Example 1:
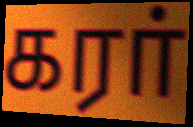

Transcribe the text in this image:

கரர்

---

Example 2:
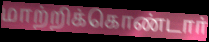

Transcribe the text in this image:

மாற்றிக்கொண்டார்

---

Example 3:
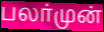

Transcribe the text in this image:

பலர்முன்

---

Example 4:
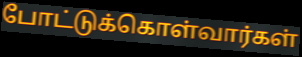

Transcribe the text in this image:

போட்டுக்கொள்வார்கள்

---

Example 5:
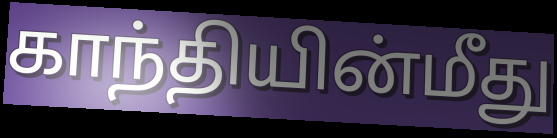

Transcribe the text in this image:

காந்தியின்மீது